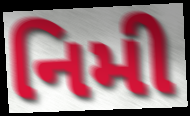
નિમી